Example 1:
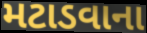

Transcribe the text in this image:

મટાડવાના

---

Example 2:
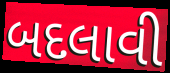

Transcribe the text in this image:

બદલાવી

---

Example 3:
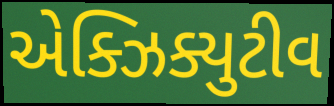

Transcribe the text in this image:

એક્ઝિક્યુટીવ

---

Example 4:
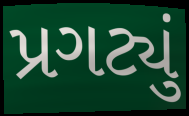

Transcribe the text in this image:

પ્રગટ્યું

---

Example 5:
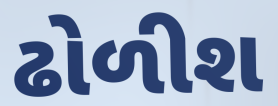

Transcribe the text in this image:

ઢોળીશ